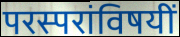
परस्परांविषयीं